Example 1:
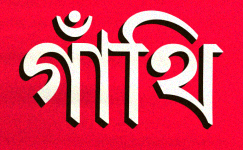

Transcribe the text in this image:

গাঁথি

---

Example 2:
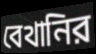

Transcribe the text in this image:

বেথানির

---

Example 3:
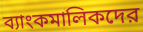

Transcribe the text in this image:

ব্যাংকমালিকদের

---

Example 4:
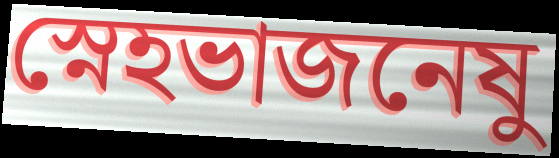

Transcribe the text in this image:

স্নেহভাজনেষু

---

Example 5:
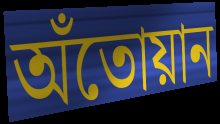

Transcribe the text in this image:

অঁতোয়ান